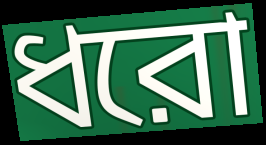
ধরো